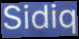
Sidiq